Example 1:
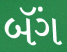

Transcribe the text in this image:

બૅંગ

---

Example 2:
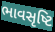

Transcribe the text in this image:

ભાવસૃષ્ટિ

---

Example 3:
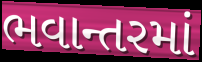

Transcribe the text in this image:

ભવાન્તરમાં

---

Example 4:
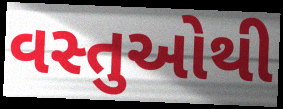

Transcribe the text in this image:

વસ્તુઓથી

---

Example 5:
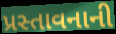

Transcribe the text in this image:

પ્રસ્તાવનાની